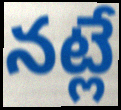
నట్లే